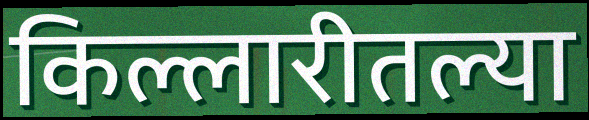
किल्लारीतल्या